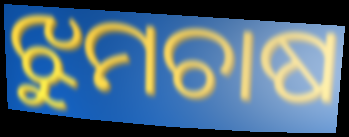
ଝୁମଚାଷ